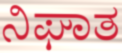
ನಿಘಾತ